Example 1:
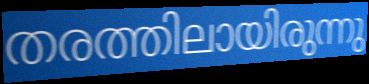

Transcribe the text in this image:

തരത്തിലായിരുന്നു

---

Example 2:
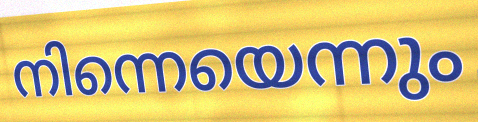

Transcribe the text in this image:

നിന്നെയെന്നും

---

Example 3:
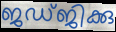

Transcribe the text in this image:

ജഡ്ജിക്കു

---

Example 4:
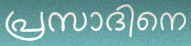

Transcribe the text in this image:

പ്രസാദിനെ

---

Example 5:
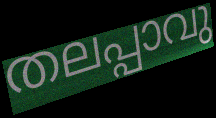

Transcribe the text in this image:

തലപ്പാവു